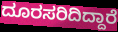
ದೂರಸರಿದಿದ್ದಾರೆ